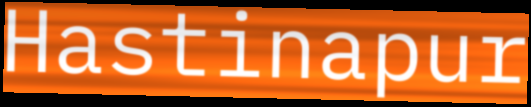
Hastinapur